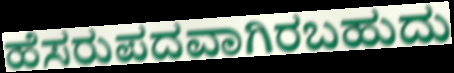
ಹೆಸರುಪದವಾಗಿರಬಹುದು